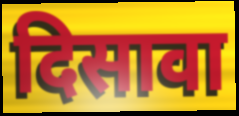
दिसावा